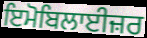
ਇਮੋਬਿਲਾਈਜ਼ਰ